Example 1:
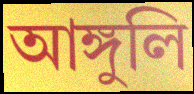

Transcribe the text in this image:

আঙ্গুলি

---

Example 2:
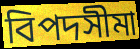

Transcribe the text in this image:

বিপদসীমা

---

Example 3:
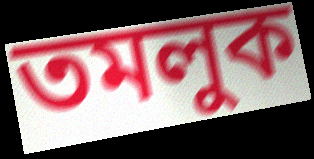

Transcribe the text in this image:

তমলুক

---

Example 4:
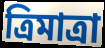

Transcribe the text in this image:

ত্রিমাত্রা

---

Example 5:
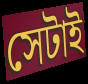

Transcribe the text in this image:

সেটাই